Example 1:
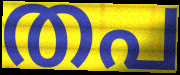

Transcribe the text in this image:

തപ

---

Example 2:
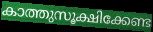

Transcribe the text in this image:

കാത്തുസൂക്ഷിക്കേണ്ട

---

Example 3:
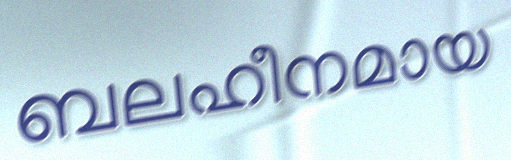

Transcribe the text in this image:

ബലഹീനമായ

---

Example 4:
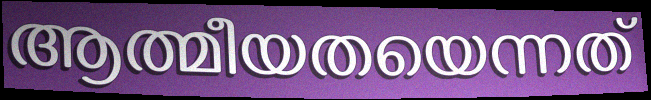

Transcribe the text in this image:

ആത്മീയതയെന്നത്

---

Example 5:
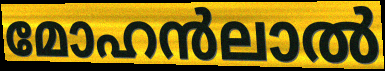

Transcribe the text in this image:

മോഹൻലാൽ